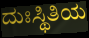
ದುಃಸ್ಥಿತಿಯ